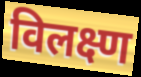
विलक्ष्ण